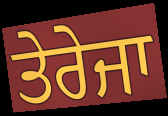
ਤੇਰੇਜਾ